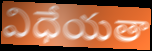
విధేయతా